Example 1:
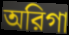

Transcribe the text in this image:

অরিগা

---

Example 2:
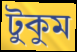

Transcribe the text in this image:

টুকুম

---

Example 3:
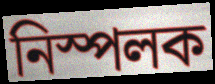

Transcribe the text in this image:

নিস্পলক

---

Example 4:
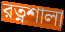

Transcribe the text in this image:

রত্নশালা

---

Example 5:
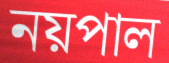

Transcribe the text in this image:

নয়পাল